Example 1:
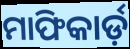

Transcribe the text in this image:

ମାଫିକାର୍ଡ଼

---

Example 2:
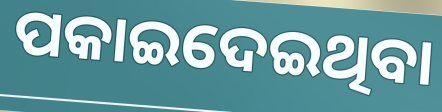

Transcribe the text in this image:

ପକାଇଦେଇଥିବା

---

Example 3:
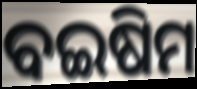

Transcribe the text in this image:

ବଇଷିମ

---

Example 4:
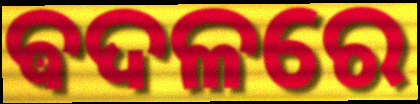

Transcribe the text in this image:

ଵଦଳରେ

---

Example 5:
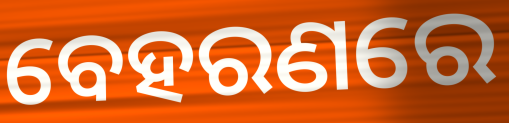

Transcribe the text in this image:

ବେହରଣରେ